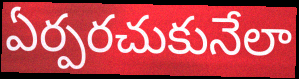
ఏర్పరచుకునేలా